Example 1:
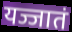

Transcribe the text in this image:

यज्जातं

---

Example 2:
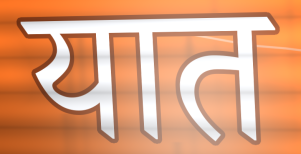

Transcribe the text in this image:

यात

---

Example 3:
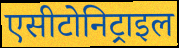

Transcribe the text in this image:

एसीटोनिट्राइल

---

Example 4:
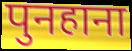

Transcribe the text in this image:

पुनहाना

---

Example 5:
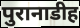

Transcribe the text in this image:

पुरानाडीह